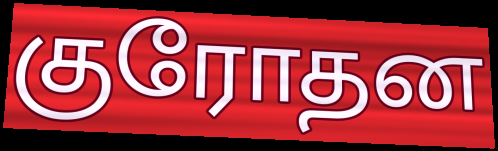
குரோதன